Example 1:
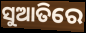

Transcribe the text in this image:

ସୁଆତିରେ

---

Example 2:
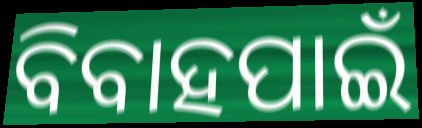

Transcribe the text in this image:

ବିବାହପାଇଁ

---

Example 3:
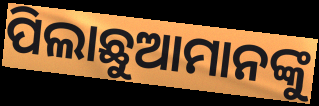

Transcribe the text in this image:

ପିଲାଛୁଆମାନଙ୍କୁ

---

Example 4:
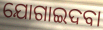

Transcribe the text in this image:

ଯୋଗାଇଦବା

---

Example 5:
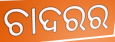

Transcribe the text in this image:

ଚାଦରର